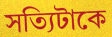
সত্যিটাকে